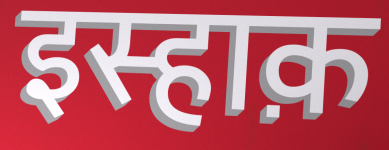
इस्हाक़